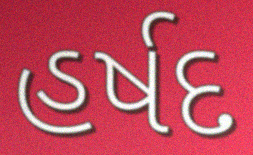
હર્ષદ